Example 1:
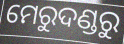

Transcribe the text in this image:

ମେରୁଦଣ୍ଡରୁ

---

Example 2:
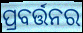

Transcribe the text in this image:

ପ୍ରବର୍ତ୍ତନର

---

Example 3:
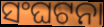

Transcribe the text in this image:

ସଂଘଟନା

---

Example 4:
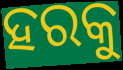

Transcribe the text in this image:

ହରକୁ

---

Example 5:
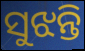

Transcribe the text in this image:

ସୁଝନ୍ତି